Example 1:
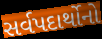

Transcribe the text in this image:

સર્વપદાર્થોનો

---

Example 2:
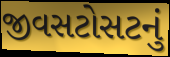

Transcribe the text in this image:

જીવસટોસટનું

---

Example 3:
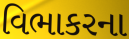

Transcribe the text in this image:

વિભાકરના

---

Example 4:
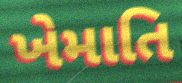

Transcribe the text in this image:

ખેમાતિ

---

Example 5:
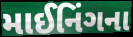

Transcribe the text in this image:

માઈનિંગના